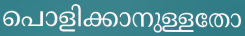
പൊളിക്കാനുള്ളതോ